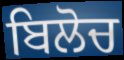
ਬਿਲੋਚ